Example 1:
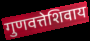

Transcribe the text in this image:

गुणवत्तेशिवाय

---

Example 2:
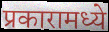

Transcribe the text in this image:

प्रकारामध्ये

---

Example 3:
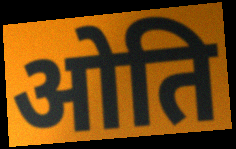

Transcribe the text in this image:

ओति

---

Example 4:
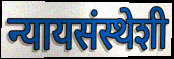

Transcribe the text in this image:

न्यायसंस्थेशी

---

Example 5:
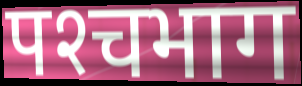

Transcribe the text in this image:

पश्चभाग